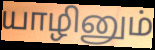
யாழினும்